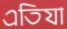
এতিযা